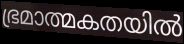
ഭ്രമാത്മകതയിൽ